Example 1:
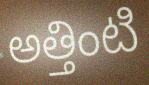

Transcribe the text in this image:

అత్తింటి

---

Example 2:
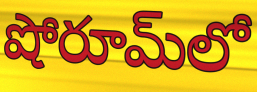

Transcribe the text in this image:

షోరూమ్‌లో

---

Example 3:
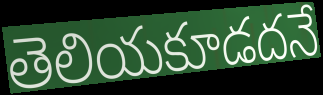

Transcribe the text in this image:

తెలియకూడదనే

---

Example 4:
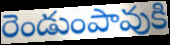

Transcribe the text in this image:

రెండుంపావుకి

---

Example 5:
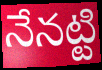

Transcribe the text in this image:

నేనట్టి